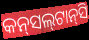
କନ୍‌ସଲ୍‌ଟାନ୍‌ସି